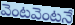
వెంటవెంటనే